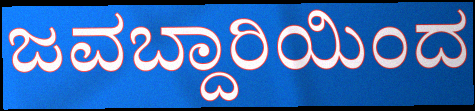
ಜವಬ್ದಾರಿಯಿಂದ